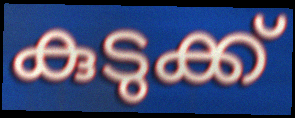
കുടുക്ക്